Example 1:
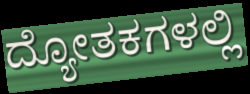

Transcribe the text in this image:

ದ್ಯೋತಕಗಳಲ್ಲಿ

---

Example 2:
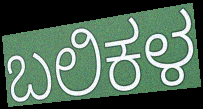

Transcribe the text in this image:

ಬಲಿಕಳ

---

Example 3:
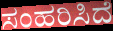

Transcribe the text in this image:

ಸಂಹರಿಸಿದೆ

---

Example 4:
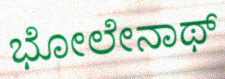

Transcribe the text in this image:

ಭೋಲೇನಾಥ್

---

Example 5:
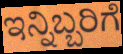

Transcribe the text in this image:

ಇನ್ನಿಬ್ಬರಿಗೆ